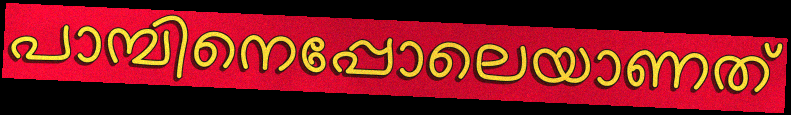
പാമ്പിനെപ്പോലെയാണത്